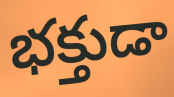
భక్తుడా